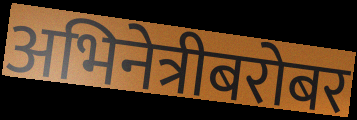
अभिनेत्रीबरोबर